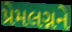
પ્રેમલગ્નને